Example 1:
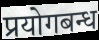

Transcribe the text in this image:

प्रयोगबन्ध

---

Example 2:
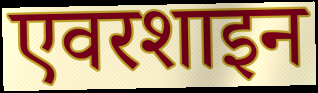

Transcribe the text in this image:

एवरशाइन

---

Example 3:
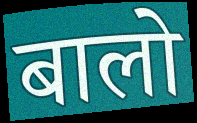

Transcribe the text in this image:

बालो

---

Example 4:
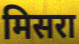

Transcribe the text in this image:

मिसरा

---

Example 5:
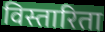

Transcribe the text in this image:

विस्तारिता